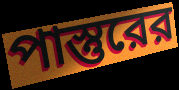
পাস্তুরের